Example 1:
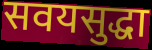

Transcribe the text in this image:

सवयसुद्धा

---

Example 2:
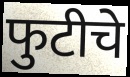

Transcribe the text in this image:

फुटीचे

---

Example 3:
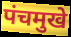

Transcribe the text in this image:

पंचमुखे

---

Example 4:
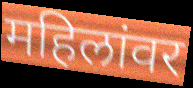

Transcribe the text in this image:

महिलांवर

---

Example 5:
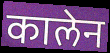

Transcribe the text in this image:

कालेन